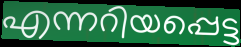
എന്നറിയപ്പെട്ട